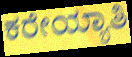
ಕರೇಯ್ಯಾತಿ